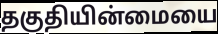
தகுதியின்மையை